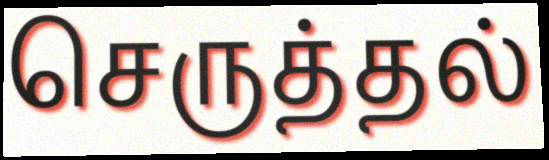
செருத்தல்